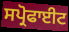
ਸਪ੍ਰੋਫਾਈਟ